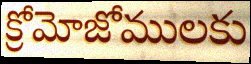
క్రోమోజోములకు